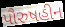
પૌરુષહીન